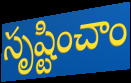
సృష్టించాం